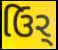
ઉિર્